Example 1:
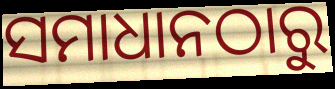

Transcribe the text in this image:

ସମାଧାନଠାରୁ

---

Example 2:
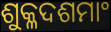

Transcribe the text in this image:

ଶୁକ୍ଳଦଶମାଂ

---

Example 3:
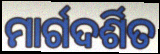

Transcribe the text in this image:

ମାର୍ଗଦର୍ଶିତ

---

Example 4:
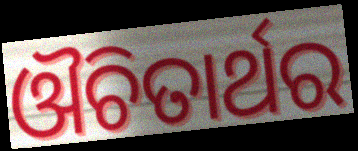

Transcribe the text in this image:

ଔଚିତାର୍ଥର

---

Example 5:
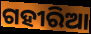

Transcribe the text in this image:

ଗହୀରିଆ